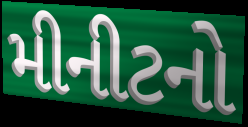
મીનીટનો